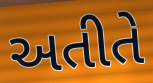
અતીતે